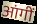
आंगीं